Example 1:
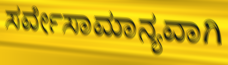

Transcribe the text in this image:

ಸರ್ವೇಸಾಮಾನ್ಯವಾಗಿ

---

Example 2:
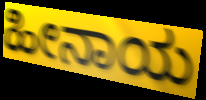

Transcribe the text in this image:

ಹೀನಾಯ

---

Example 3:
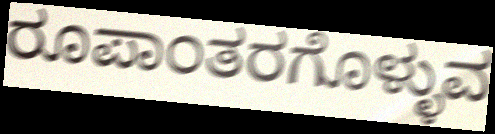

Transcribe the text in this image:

ರೂಪಾಂತರಗೊಳ್ಳುವ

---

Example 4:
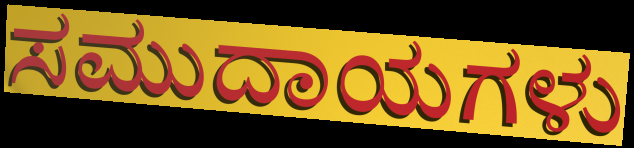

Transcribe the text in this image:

ಸಮುದಾಯಗಳು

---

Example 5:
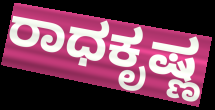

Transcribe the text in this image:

ರಾಧಕೃಷ್ಣ